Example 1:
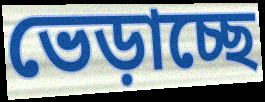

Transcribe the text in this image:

ভেড়াচ্ছে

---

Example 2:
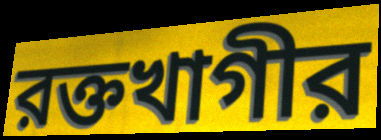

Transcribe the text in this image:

রক্তখাগীর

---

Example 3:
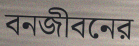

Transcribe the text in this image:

বনজীবনের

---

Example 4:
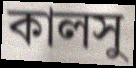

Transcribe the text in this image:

কালসু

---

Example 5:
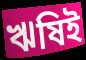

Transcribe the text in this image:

ঋষিই